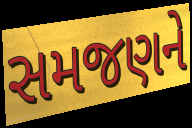
સમજણને